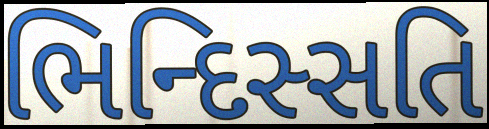
ભિન્દિસ્સતિ